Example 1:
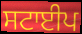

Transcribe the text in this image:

ਸਟਾਈਪ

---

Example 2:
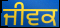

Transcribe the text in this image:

ਜੀਵਕ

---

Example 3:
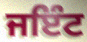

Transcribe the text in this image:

ਜਇੰਟ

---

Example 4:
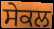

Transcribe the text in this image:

ਸੇਕਲ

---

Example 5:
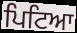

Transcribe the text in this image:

ਪਿਟਿਆ